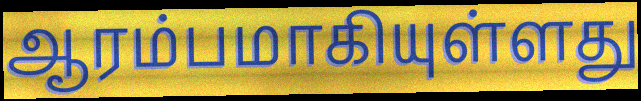
ஆரம்பமாகியுள்ளது